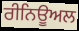
ਰੀਨਿਊਅਲ